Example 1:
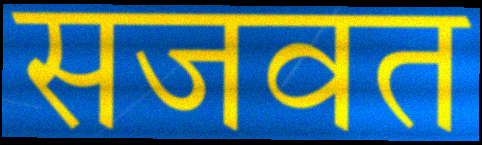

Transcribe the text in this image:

सजवत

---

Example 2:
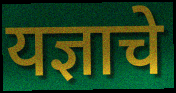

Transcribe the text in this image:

यज्ञाचे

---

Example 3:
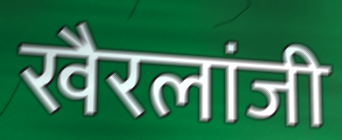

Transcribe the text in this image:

खैरलांजी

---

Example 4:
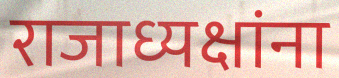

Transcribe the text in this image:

राजाध्यक्षांना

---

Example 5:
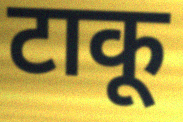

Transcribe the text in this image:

टाकू